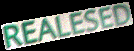
REALESED